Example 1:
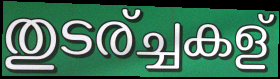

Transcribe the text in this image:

തുടര്ച്ചകള്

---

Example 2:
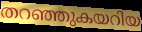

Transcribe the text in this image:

തറഞ്ഞുകയറിയ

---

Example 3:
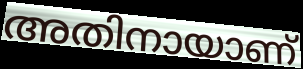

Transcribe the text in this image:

അതിനായാണ്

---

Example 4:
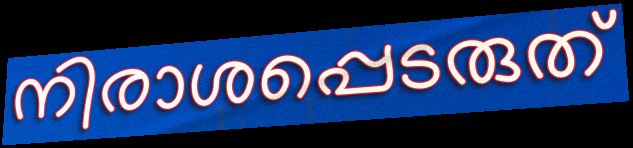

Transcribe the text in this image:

നിരാശപ്പെടരുത്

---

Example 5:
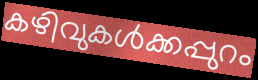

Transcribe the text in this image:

കഴിവുകൾക്കപ്പുറം